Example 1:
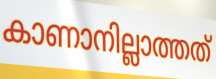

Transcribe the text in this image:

കാണാനില്ലാത്തത്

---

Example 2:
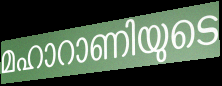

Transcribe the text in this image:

മഹാറാണിയുടെ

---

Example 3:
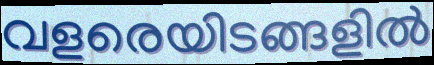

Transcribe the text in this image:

വളരെയിടങ്ങളിൽ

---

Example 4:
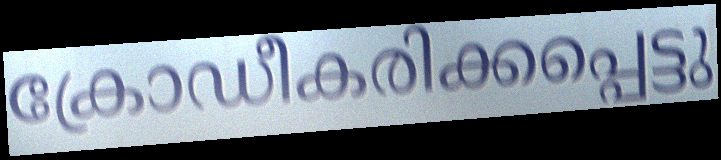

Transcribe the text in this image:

ക്രോഡീകരിക്കപ്പെട്ടു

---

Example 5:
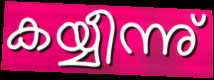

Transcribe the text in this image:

കയ്യീന്നു്